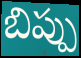
బిప్పు